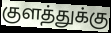
குளத்துக்கு